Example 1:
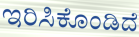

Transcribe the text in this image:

ಇರಿಸಿಕೊಂಡಿದೆ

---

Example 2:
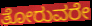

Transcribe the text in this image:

ತೋರುವರೇ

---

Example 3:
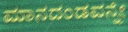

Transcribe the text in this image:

ಮಾನದಂಡವನ್ನೇ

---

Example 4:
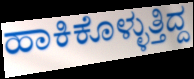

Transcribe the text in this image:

ಹಾಕಿಕೊಳ್ಳುತ್ತಿದ್ದ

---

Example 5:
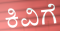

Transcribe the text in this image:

ಕಿವಿಗೆ